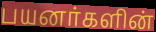
பயனர்களின்